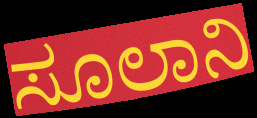
ಸೂಲಾನಿ